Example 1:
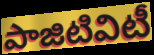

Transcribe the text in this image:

పాజిటివిటీ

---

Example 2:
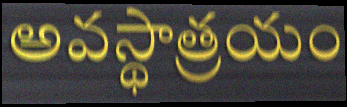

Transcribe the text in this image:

అవస్థాత్రయం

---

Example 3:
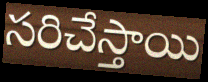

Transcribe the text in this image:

సరిచేస్తాయి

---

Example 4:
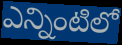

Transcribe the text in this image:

ఎన్నింటిలో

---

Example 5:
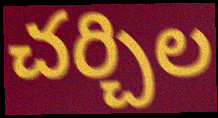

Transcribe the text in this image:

చర్చిల